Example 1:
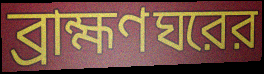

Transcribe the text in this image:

ব্রাহ্মণঘরের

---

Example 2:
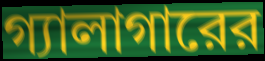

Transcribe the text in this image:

গ্যালাগারের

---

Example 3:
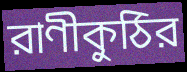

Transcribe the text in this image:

রাণীকুঠির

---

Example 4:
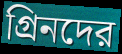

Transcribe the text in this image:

গ্রিনদের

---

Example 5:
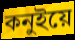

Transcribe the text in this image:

কনুইয়ে